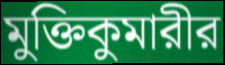
মুক্তিকুমারীর